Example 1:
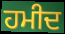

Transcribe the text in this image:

ਹਮੀਦ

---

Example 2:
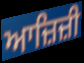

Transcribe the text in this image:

ਆਜ਼ਿਜ਼ੀ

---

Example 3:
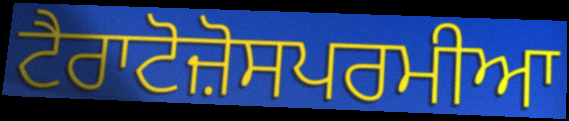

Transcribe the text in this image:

ਟੈਰਾਟੋਜ਼ੋਸਪਰਮੀਆ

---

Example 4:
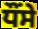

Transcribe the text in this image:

ਧੌਂਸੇ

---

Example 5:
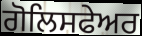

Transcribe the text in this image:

ਗੋਲਿਸਫੇਅਰ